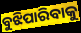
ବୁଝିପାରିବାକୁ